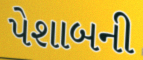
પેશાબની